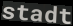
stadt